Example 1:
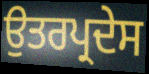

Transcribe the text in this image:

ਉਤਰਪ੍ਰਦੇਸ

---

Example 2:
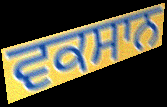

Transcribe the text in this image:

ਵਕਸਾਨ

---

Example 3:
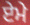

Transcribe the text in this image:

ਏਮੇ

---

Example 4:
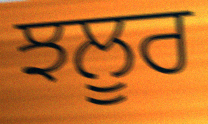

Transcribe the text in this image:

ਝਲੂਰ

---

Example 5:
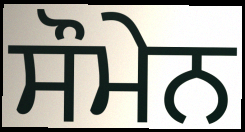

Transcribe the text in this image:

ਸੌਮੇਨ